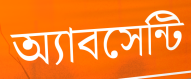
অ্যাবসেন্টি